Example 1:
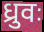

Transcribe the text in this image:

ध्रुवः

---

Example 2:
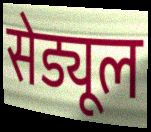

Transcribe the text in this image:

सेड्यूल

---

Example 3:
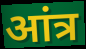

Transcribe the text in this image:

आंत्र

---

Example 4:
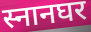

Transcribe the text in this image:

स्नानघर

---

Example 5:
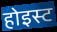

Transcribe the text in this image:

होइस्ट